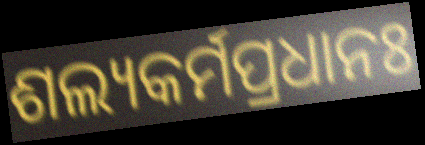
ଶଲ୍ୟକର୍ମପ୍ରଧାନଃ